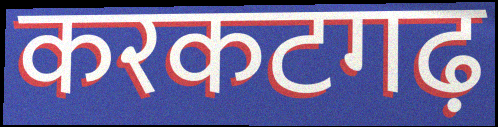
करकटगढ़